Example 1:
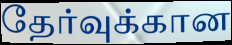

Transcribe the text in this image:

தேர்வுக்கான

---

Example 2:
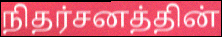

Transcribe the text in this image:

நிதர்சனத்தின்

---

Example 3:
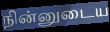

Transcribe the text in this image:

நின்னுடைய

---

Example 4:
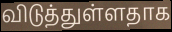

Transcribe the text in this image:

விடுத்துள்ளதாக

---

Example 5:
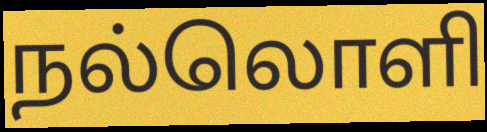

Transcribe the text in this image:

நல்லொளி